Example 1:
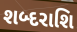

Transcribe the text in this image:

શબ્દરાશિ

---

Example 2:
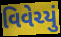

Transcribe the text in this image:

વિવેચ્યું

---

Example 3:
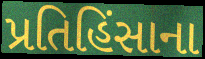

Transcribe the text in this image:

પ્રતિહિંસાના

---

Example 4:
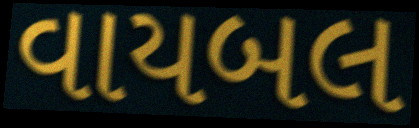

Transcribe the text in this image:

વાયબલ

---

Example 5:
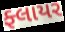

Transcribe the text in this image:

ફ્લાયર